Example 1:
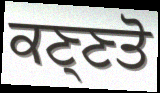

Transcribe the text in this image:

ਕਣ੍ਣਤੋ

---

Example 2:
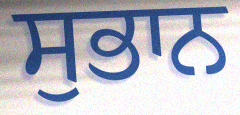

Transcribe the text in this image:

ਸੁਭਾਨ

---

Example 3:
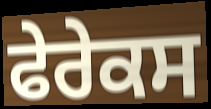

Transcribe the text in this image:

ਫੇਰੇਕਸ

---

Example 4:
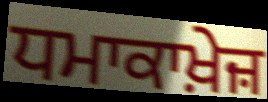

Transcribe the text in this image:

ਧਮਾਕਾਖ਼ੇਜ਼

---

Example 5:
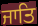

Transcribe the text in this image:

ਜਾਤਿ